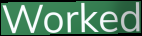
Worked